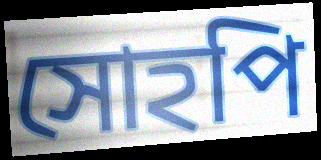
সোহপি